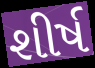
શીર્ષ